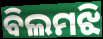
ବିଲମଝି